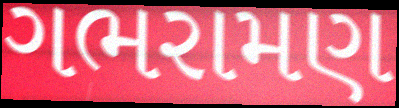
ગભરામણ